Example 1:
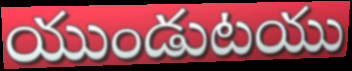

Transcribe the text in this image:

యుండుటయు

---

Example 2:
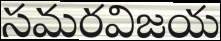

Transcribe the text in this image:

సమరవిజయ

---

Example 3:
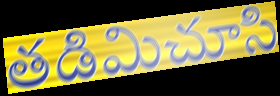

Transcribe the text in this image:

తడిమిచూసి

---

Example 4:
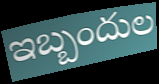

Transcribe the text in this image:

ఇబ్బందుల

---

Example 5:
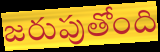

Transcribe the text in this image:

జరుపుతోంది